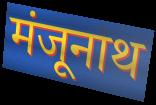
मंजूनाथ